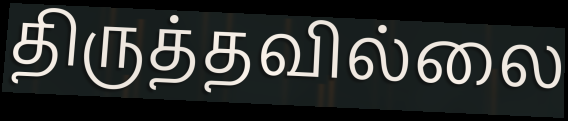
திருத்தவில்லை